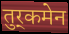
तुर्कमेन